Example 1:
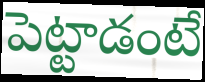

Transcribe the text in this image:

పెట్టాడంటే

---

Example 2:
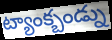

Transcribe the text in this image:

ట్యాంక్బండ్ను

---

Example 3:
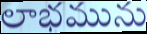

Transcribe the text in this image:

లాభమును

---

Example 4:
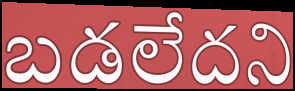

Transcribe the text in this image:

బడలేదని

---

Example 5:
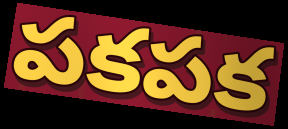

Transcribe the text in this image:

పకపక